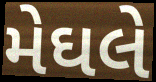
મેઘલે